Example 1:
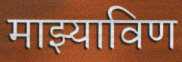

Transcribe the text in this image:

माझ्याविण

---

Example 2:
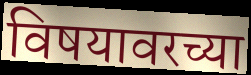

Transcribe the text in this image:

विषयावरच्या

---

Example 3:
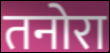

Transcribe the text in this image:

तनोरा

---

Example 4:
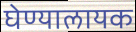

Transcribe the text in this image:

घेण्यालायक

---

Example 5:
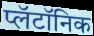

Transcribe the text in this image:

प्लॅटॉनिक